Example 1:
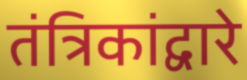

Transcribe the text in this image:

तंत्रिकांद्वारे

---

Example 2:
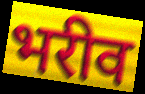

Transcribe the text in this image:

भरीव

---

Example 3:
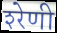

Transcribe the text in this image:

श्रेणी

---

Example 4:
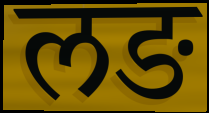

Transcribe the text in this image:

लङ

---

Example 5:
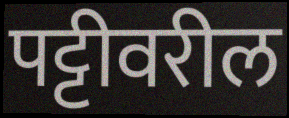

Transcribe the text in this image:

पट्टीवरील